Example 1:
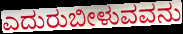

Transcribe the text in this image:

ಎದುರುಬೀಳುವವನು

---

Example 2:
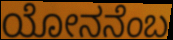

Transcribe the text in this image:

ಯೋನನೆಂಬ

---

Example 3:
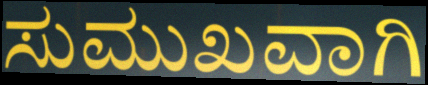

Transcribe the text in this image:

ಸುಮುಖವಾಗಿ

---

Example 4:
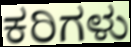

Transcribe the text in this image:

ಕರಿಗಳು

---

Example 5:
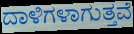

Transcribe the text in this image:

ದಾಳಿಗಳಾಗುತ್ತವೆ